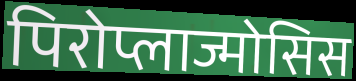
पिरोप्लाज्मोसिस